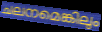
ചലനമെങ്കിലും